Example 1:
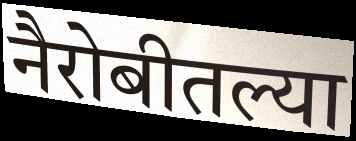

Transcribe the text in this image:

नैरोबीतल्या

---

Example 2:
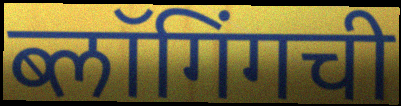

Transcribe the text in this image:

ब्लॉगिंगची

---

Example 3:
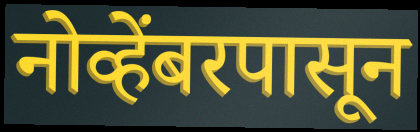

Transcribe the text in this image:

नोव्हेंबरपासून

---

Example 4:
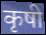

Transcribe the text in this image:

कृषी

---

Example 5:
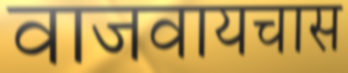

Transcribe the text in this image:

वाजवायचास